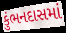
કુંભનદાસમાં